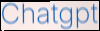
Chatgpt